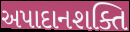
અપાદાનશક્તિ